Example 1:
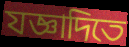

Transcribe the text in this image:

যজ্ঞাদিতে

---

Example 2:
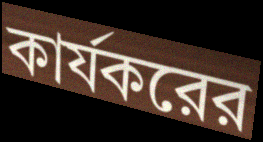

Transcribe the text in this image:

কার্যকরের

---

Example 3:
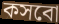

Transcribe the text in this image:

কসবো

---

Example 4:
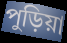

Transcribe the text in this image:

পুড়িয়া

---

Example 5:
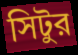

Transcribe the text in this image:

সিটুর